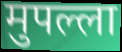
मुपल्ला